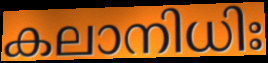
കലാനിധിഃ